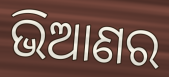
ଭିଆଣର